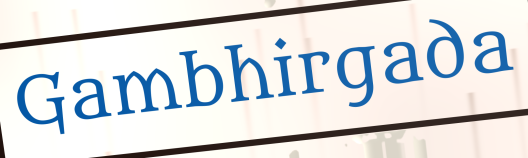
Gambhirgada